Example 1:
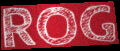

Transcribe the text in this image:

ROG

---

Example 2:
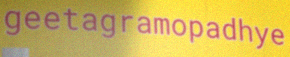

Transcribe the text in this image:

geetagramopadhye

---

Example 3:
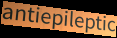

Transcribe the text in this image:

antiepileptic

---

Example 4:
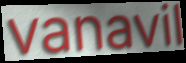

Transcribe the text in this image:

vanavil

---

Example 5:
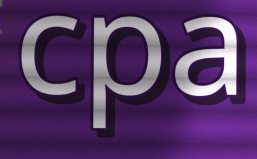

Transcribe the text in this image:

cpa